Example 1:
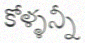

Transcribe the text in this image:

కోళ్ళన్నీ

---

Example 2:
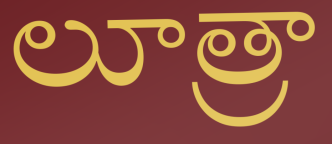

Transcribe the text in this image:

లూత్రా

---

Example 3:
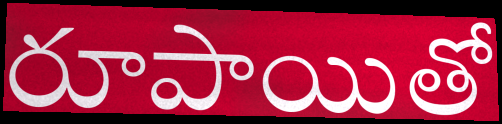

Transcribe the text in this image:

రూపాయితో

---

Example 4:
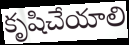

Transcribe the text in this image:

కృషిచేయాలి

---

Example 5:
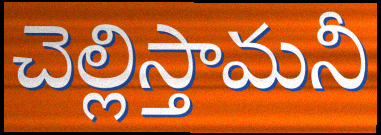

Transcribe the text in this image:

చెల్లిస్తామనీ